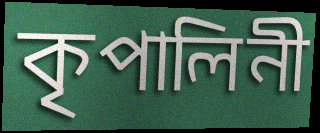
কৃপালিনী